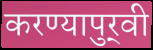
करण्यापुर्वी